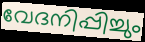
വേദനിപ്പിച്ചും